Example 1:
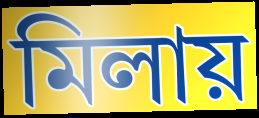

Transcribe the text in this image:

মিলায়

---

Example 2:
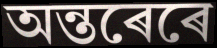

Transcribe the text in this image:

অন্তৰেৰে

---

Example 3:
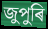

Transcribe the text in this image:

জুপুৰি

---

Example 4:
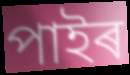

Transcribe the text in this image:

পাইৰ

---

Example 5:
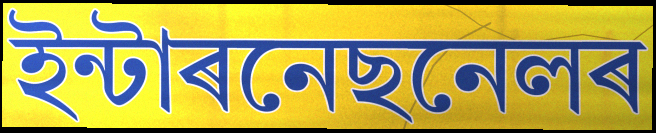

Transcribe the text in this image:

ইন্টাৰনেছনেলৰ